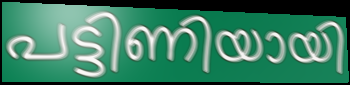
പട്ടിണിയായി